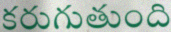
కరుగుతుంది